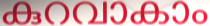
കുറവാകാം